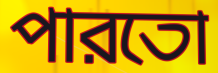
পারতো